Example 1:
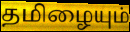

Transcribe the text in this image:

தமிழையும்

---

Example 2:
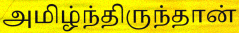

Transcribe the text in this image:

அமிழ்ந்திருந்தான்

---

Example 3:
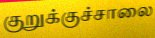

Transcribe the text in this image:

குறுக்குச்சாலை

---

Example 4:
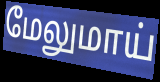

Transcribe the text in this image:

மேலுமாய்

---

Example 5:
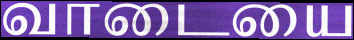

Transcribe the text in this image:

வாடையை